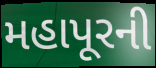
મહાપૂરની